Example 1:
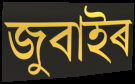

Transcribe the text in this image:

জুবাইৰ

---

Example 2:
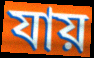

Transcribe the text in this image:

যায়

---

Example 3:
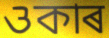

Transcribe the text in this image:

ওকাৰ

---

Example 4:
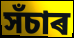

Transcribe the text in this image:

সঁচাৰ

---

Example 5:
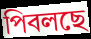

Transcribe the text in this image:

পিবলছে